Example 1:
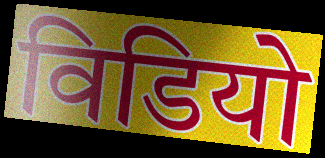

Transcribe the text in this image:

विडियो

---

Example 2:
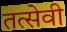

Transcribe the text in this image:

तत्सेवी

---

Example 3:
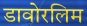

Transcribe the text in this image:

डावोरलिम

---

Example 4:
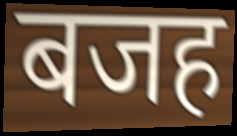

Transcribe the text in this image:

बजह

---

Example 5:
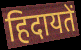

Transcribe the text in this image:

हिदायतें